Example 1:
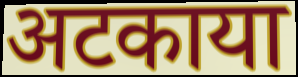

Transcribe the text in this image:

अटकाया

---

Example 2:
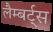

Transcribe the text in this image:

लैम्बर्ट्स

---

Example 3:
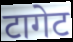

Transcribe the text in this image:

टागेट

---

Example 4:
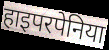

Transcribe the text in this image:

हाइपरपेनिया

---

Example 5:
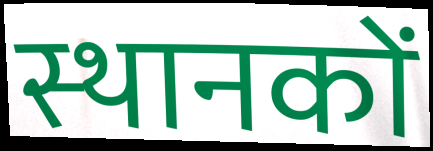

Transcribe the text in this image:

स्थानकों